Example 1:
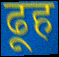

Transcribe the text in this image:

ढूह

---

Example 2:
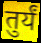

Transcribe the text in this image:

तुर्यं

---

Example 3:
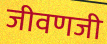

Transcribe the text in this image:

जीवणजी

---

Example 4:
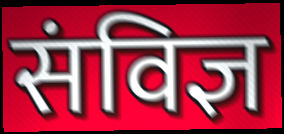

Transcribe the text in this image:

संविज्ञ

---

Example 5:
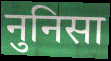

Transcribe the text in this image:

नुनिसा